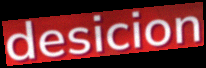
desicion